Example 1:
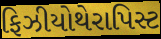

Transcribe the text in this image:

ફિઝીયોથેરાપિસ્ટ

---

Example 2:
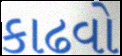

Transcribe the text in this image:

કાઢવો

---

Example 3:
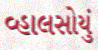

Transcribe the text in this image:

વ્હાલસોયું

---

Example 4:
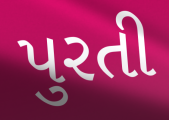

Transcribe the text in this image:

પુરતી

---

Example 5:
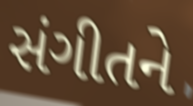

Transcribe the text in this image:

સંગીતને